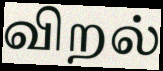
விறல்